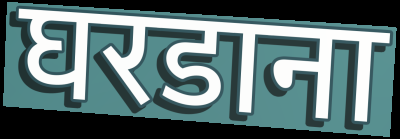
घरडाना